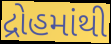
દ્રોહમાંથી